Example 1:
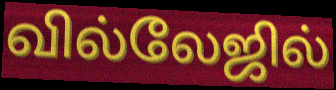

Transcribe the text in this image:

வில்லேஜில்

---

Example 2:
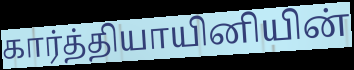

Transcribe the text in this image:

கார்த்தியாயினியின்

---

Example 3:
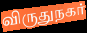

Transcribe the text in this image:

விருதுநகர்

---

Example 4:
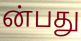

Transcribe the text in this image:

ன்பது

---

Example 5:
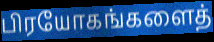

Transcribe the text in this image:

பிரயோகங்களைத்